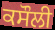
ਕਸੌਲੀ